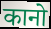
कानो